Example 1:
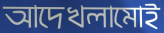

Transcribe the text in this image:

আদেখলামোই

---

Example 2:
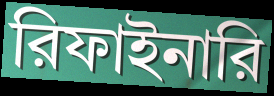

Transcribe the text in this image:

রিফাইনারি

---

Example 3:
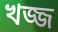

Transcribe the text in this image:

খজ্জ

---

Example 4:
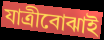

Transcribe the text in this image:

যাত্রীবোঝাই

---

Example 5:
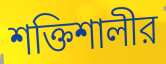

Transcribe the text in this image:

শক্তিশালীর